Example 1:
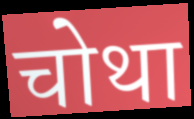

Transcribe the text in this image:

चोथा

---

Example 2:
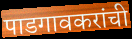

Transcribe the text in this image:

पाडगावकरांची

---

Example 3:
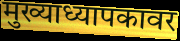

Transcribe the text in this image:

मुख्याध्यापकावर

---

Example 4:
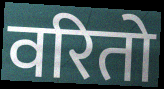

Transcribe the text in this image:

वरितो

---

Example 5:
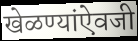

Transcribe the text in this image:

खेळण्यांऐवजी